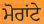
ਮੋਰਾਂਟੇ